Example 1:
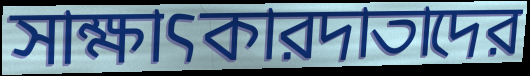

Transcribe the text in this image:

সাক্ষাৎকারদাতাদের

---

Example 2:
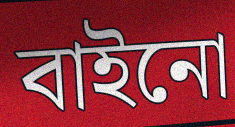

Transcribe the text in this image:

বাইনো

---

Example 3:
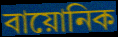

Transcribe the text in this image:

বায়োনিক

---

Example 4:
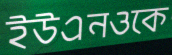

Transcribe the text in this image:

ইউএনওকে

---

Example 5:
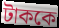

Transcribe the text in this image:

টাককে